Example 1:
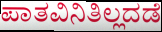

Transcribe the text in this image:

ಪಾತವಿನಿತಿಲ್ಲದಡೆ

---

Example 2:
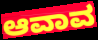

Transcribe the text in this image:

ಆವಾವ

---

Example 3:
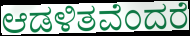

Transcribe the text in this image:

ಆಡಳಿತವೆಂದರೆ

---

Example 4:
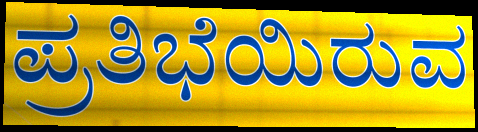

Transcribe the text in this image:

ಪ್ರತಿಭೆಯಿರುವ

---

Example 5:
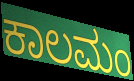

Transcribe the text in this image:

ಕಾಲಮಂ